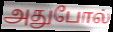
அதுபோல்